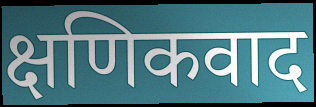
क्षणिकवाद